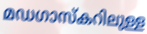
മഡഗാസ്കറിലുള്ള